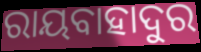
ରାୟବାହାଦୁର